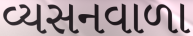
વ્યસનવાળા